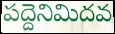
పద్దెనిమిదవ